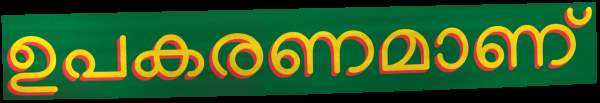
ഉപകരണമാണ്